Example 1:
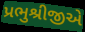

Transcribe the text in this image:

પ્રભુશ્રીજીએ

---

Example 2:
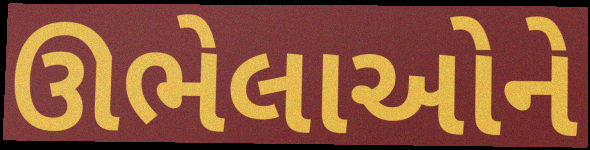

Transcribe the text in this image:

ઊભેલાઓને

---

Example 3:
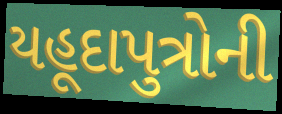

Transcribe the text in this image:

યહૂદાપુત્રોની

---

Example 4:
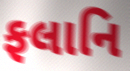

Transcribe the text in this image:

ફલાનિ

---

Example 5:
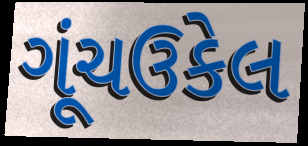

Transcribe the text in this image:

ગૂંચઉકેલ